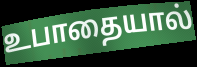
உபாதையால்